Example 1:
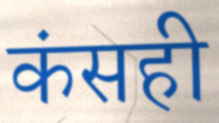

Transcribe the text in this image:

कंसही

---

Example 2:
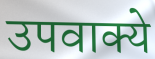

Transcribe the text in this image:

उपवाक्ये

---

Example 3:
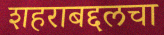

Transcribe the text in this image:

शहराबद्दलचा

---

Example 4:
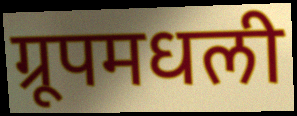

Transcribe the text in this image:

ग्रूपमधली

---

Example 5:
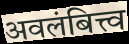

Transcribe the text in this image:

अवलंबित्त्व